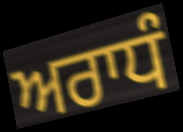
ਅਰਾਧੰ